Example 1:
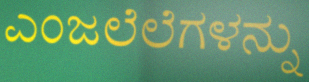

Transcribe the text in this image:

ಎಂಜಲೆಲೆಗಳನ್ನು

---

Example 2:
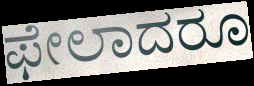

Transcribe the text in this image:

ಫೇಲಾದರೂ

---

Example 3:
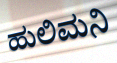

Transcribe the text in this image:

ಹುಲಿಮನಿ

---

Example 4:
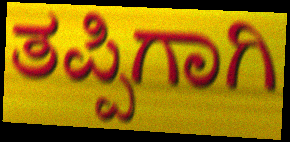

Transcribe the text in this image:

ತಪ್ಪಿಗಾಗಿ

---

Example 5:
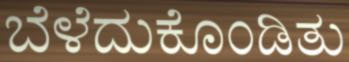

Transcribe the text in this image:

ಬೆಳೆದುಕೊಂಡಿತು